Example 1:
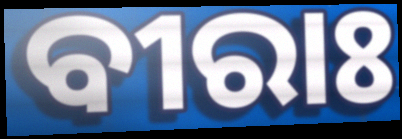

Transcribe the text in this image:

ବୀରାଃ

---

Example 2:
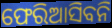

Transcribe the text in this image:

ଫେରିଆସିବନି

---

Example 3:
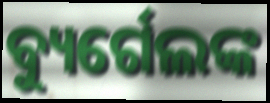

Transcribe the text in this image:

ବ୍ୟୁର୍ଗେଲଙ୍କ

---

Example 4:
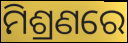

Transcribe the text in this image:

ମିଶ୍ରଣରେ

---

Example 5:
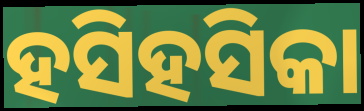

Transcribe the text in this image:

ହସିହସିକା